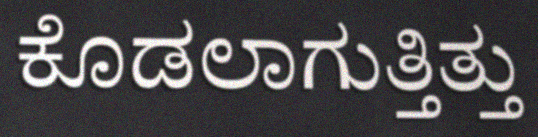
ಕೊಡಲಾಗುತ್ತಿತ್ತು